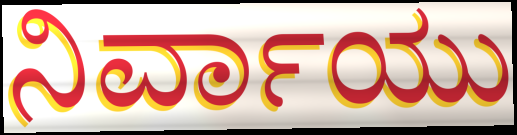
ನಿರ್ವಾಯು